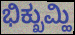
ಭಿಕ್ಖುಮ್ಹಿ